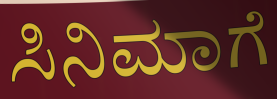
ಸಿನಿಮಾಗೆ